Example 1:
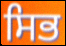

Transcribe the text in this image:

ਸਿਭ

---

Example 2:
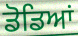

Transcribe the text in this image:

ਡੋਡਿਆਂ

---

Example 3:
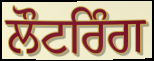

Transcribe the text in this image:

ਲੌਟਰਿੰਗ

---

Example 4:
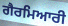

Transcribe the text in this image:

ਗੈਰਮਿਆਰੀ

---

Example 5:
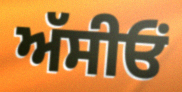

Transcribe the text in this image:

ਅੱਸੀਓਂ